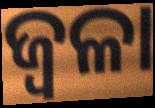
ଜ୍ୱଳା